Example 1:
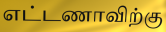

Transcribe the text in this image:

எட்டணாவிற்கு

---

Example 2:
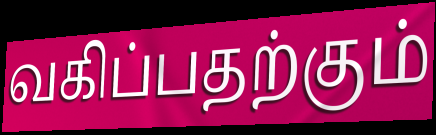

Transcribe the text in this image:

வகிப்பதற்கும்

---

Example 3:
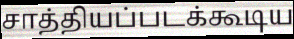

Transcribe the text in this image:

சாத்தியப்படக்கூடிய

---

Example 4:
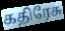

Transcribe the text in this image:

கதிரேசு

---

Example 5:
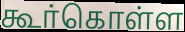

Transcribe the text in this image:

கூர்கொள்ள